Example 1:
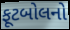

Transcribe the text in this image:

ફૂટબોલનો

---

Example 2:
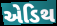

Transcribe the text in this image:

એડિથ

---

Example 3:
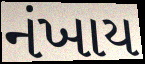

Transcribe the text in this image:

નંખાય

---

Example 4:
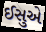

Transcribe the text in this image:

ઈસુએ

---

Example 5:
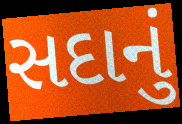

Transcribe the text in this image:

સદાનું